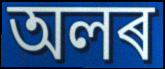
অলৰ